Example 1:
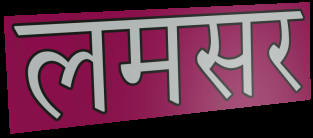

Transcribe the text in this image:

लमसर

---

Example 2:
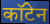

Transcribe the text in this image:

कॉटेन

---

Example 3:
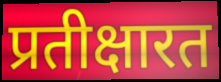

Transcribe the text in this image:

प्रतीक्षारत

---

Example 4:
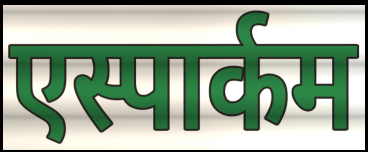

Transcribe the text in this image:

एस्पार्कम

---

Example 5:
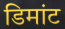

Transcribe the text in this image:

डिमांट